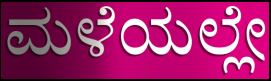
ಮಳೆಯಲ್ಲೇ